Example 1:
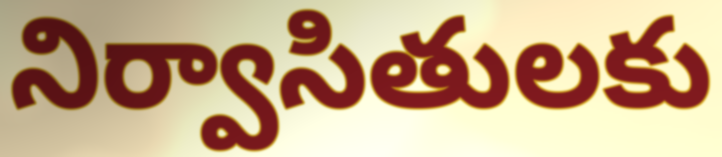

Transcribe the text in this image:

నిర్వాసితులకు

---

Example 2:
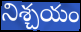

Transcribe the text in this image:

నిశ్చయం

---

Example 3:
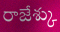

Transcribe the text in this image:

రాజేశ్కు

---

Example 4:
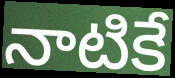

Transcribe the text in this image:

నాటికే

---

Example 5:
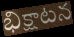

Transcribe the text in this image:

భిక్షాటన